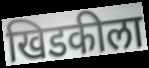
खिडकीला